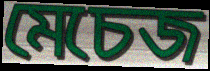
মেচেজ